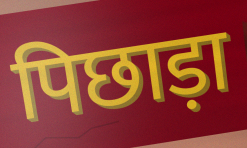
पिछाड़ा